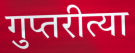
गुप्तरीत्या